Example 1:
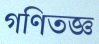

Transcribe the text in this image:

গণিতজ্ঞ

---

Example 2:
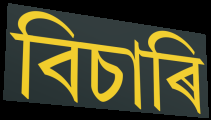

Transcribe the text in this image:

বিচাৰি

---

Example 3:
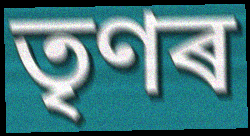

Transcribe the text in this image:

তৃণৰ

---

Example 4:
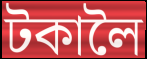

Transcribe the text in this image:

টকালৈ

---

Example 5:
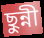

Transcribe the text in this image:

ছুন্নী